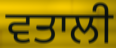
ਵਤਾਲੀ